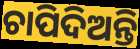
ଚାପିଦିଅନ୍ତି